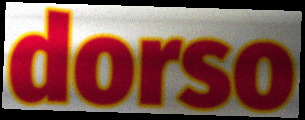
dorso